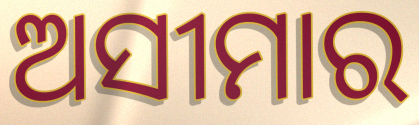
ଅସୀମାର